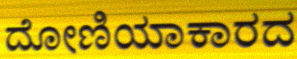
ದೋಣಿಯಾಕಾರದ